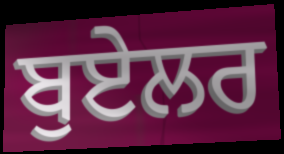
ਬੁਏਲਰ